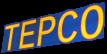
TEPCO